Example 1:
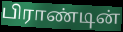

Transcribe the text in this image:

பிராண்டின்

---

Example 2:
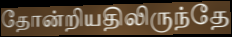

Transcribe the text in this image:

தோன்றியதிலிருந்தே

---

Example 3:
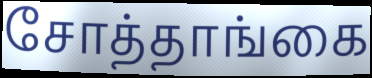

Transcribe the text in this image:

சோத்தாங்கை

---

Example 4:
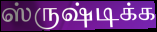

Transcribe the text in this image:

ஸ்ருஷ்டிக்க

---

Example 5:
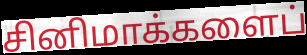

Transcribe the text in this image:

சினிமாக்களைப்